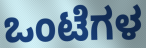
ಒಂಟೆಗಳ